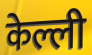
केल्ली